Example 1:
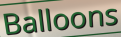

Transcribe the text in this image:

Balloons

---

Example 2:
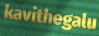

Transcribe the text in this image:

kavithegalu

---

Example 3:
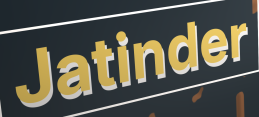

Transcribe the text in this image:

Jatinder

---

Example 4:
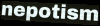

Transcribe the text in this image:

nepotism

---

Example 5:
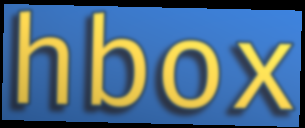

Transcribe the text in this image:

hbox